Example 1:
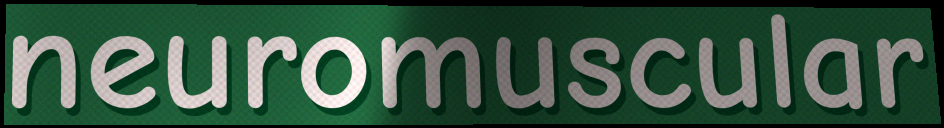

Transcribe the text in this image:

neuromuscular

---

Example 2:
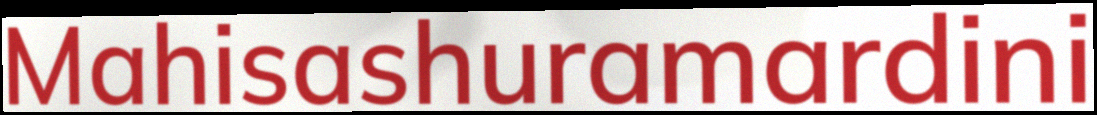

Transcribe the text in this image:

Mahisashuramardini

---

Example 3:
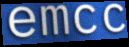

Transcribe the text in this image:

emcc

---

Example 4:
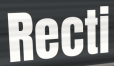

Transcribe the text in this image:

Recti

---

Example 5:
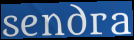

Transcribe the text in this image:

sendra